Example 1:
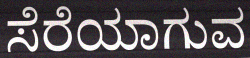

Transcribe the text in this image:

ಸೆರೆಯಾಗುವ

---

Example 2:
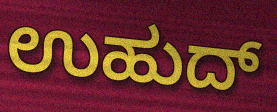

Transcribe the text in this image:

ಉಹುದ್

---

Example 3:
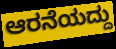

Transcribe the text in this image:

ಆರನೆಯದ್ದು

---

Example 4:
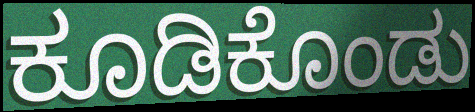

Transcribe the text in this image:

ಕೂಡಿಕೊಂಡು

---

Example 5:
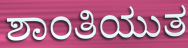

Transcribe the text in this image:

ಶಾಂತಿಯುತ